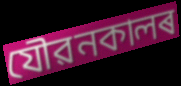
যৌৱনকালৰ